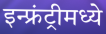
इन्फ्रंट्रीमध्ये